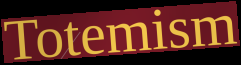
Totemism